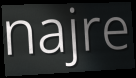
najre